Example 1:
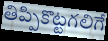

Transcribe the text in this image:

తిప్పికొట్టగలిగే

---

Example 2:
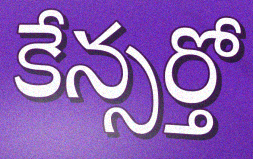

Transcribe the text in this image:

కేన్సర్తో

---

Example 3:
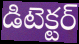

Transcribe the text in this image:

డిటెక్టర్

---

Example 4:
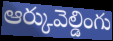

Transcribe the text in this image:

ఆర్కువెల్డింగు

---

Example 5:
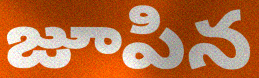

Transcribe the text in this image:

జూపిన